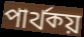
পাৰ্থক্য়